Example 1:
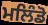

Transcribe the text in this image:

ਮਲਿੰਡੋ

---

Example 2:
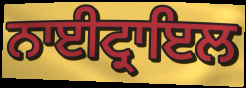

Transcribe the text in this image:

ਨਾਈਟ੍ਰਾਇਲ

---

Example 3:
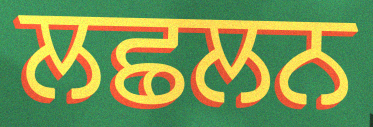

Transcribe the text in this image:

ਲਛਲਨ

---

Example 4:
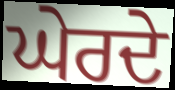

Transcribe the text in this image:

ਘੇਰਦੇ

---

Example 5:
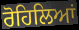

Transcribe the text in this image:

ਰੋਹਿਲਿਆਂ